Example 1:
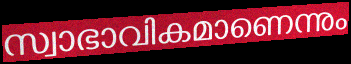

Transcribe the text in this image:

സ്വാഭാവികമാണെന്നും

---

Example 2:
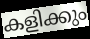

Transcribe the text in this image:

കളിക്കും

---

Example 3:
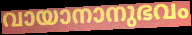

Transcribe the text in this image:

വായാനാനുഭവം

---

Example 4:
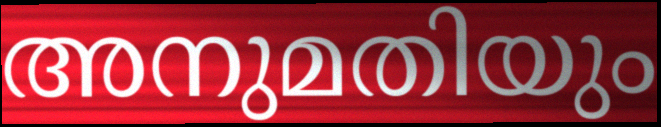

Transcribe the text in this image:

അനുമതിയും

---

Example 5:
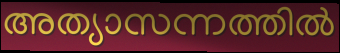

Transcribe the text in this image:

അത്യാസന്നത്തിൽ